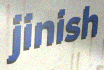
jinish